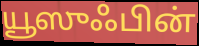
யூஸுஃபின்